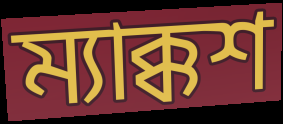
ম্যাক্কশ